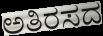
ಅತಿರಸದ